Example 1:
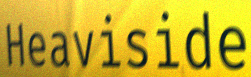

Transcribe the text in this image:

Heaviside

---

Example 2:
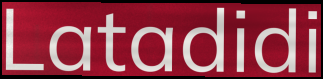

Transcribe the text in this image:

Latadidi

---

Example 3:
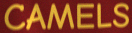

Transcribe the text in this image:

CAMELS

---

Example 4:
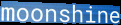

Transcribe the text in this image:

moonshine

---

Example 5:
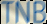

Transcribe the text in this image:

TNB